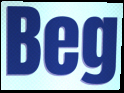
Beg